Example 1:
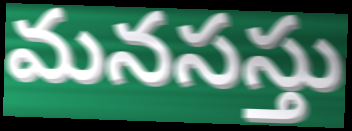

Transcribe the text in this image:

మనసస్తు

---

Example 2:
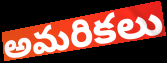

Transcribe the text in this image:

అమరికలు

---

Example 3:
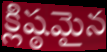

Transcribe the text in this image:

క్లిష్ఠమైన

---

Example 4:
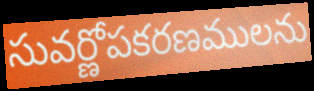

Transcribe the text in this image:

సువర్ణోపకరణములను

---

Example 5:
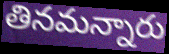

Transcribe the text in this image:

తినమన్నారు